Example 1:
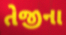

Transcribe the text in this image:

તેજીના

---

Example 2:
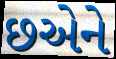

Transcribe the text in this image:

છએને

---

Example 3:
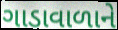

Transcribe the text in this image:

ગાડાવાળાને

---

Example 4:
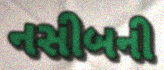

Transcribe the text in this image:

નસીબની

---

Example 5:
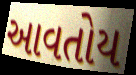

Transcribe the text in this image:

આવતોય